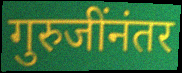
गुरुजींनंतर